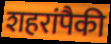
शहरांपैकी